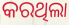
କରଥିଲା